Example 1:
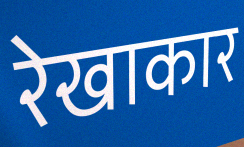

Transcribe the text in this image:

रेखाकार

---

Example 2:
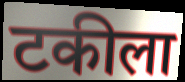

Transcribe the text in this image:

टकीला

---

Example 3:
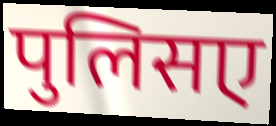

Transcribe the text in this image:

पुलिसए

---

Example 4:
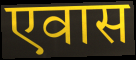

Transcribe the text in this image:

एवास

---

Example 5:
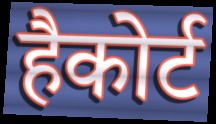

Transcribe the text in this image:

हैकोर्ट